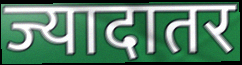
ज्यादातर